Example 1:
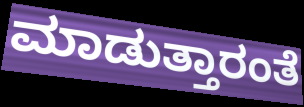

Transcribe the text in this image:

ಮಾಡುತ್ತಾರಂತೆ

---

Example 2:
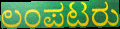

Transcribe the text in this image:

ಲಂಪಟರು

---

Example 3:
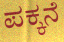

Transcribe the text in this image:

ಪಕ್ಕನೆ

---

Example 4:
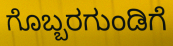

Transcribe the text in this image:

ಗೊಬ್ಬರಗುಂಡಿಗೆ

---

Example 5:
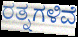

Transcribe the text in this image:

ರತ್ನಗಳಿವೆ